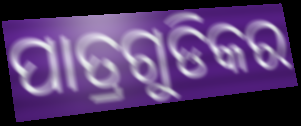
ପାତ୍ରଗୁଡିକର